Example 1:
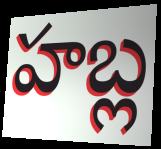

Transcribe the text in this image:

హబ్ల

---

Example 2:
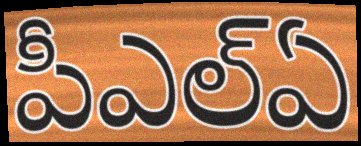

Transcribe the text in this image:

పీఎల్ఏ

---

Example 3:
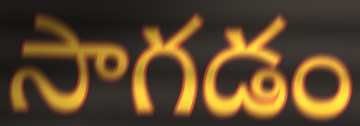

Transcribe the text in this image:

సాగడం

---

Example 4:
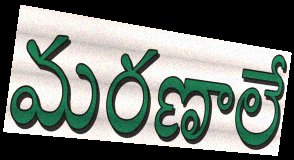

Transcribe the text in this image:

మరణాలే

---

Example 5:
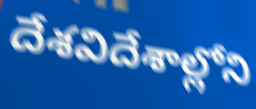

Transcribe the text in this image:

దేశవిదేశాల్లోని